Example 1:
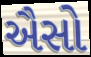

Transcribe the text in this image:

ઐસો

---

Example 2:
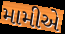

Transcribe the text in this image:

મામીએ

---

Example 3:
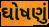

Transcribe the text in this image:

ઘોષણું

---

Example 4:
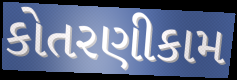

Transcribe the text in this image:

કોતરણીકામ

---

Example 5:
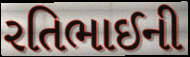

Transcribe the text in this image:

રતિભાઈની